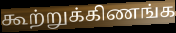
கூற்றுக்கிணங்க